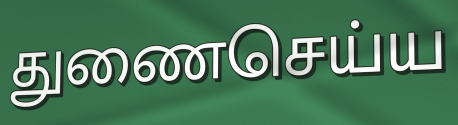
துணைசெய்ய